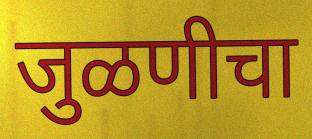
जुळणीचा